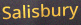
Salisbury